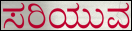
ಸರಿಯುವ